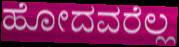
ಹೋದವರೆಲ್ಲ